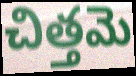
చిత్తమె